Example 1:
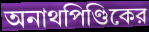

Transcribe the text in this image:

অনাথপিণ্ডিকের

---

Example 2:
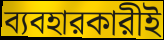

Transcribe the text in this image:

ব্যবহারকারীই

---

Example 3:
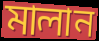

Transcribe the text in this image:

মালান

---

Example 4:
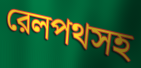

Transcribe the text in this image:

রেলপথসহ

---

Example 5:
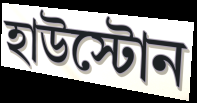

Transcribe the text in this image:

হাউস্টোন